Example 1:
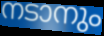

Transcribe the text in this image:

നടാനും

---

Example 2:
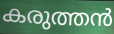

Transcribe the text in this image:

കരുത്തൻ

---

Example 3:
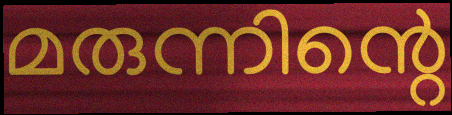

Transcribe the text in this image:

മരുന്നിന്റെ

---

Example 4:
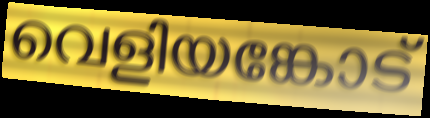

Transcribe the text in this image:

വെളിയങ്കോട്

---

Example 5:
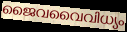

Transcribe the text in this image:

ജൈവവൈവിധ്യം